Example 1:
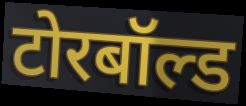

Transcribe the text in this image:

टोरबॉल्ड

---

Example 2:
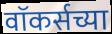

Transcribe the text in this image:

वॉकर्सच्या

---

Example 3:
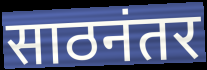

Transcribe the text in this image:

साठनंतर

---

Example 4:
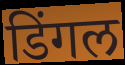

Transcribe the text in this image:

डिंगल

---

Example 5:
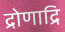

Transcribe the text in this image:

द्रोणाद्रि